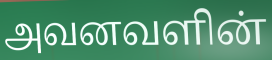
அவனவளின்